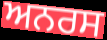
ਅਨਰਸ